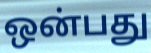
ஒன்பது